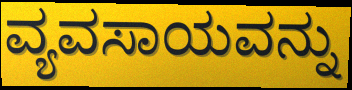
ವ್ಯವಸಾಯವನ್ನು